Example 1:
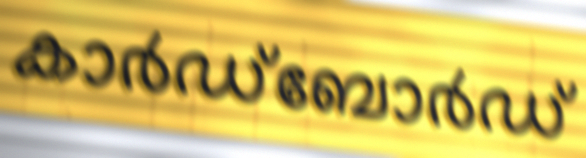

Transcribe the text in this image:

കാർഡ്ബോർഡ്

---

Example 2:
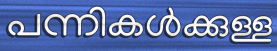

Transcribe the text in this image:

പന്നികൾക്കുള്ള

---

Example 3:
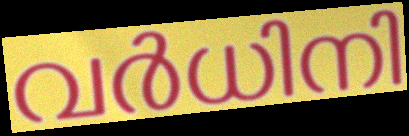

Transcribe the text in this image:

വർധിനി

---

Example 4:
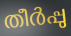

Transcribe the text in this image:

തീർപ്പു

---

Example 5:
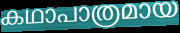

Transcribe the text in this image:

കഥാപാത്രമായ